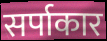
सर्पाकार